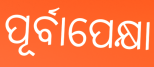
ପୂର୍ବାପେକ୍ଷା